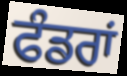
ਫੰਡਰਾਂ